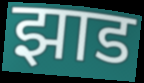
झाड